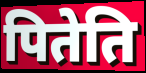
पितेति